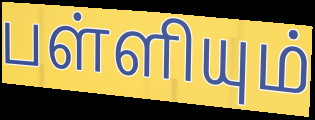
பள்ளியும்